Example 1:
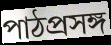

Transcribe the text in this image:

পাঠপ্রসঙ্গ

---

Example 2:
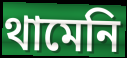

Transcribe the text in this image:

থামেনি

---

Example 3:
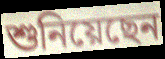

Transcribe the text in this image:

শুনিয়েছেন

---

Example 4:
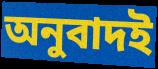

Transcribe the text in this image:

অনুবাদই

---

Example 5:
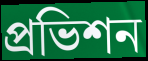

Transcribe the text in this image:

প্রভিশন